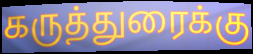
கருத்துரைக்கு